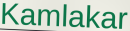
Kamlakar